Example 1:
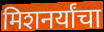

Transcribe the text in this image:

मिशनर्यांचा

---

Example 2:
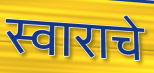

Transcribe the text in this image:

स्वाराचे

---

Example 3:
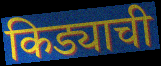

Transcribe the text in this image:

किड्याची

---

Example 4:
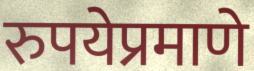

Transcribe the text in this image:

रुपयेप्रमाणे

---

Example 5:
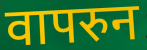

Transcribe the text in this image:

वापरुन